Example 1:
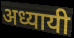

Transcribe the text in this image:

अध्यायी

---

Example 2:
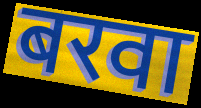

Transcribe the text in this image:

बरवा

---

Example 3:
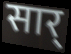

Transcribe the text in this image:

सार्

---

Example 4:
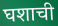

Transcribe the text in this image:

घशाची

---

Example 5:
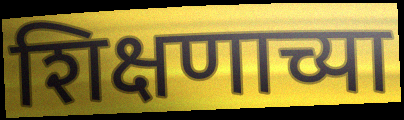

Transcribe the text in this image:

शिक्षणाच्या